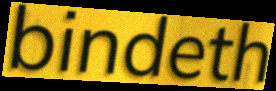
bindeth